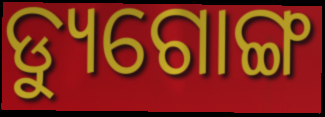
ଡ୍ୟୁଗୋଙ୍ଗ